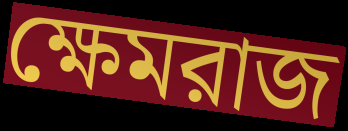
ক্ষেমরাজ